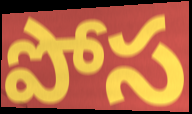
పోస